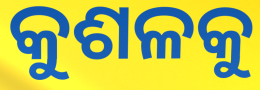
କୁଶଳକୁ